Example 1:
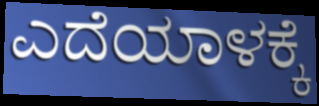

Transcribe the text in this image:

ಎದೆಯಾಳಕ್ಕೆ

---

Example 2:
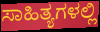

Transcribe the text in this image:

ಸಾಹಿತ್ಯಗಳಲ್ಲಿ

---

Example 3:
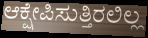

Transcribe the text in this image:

ಆಕ್ಷೇಪಿಸುತ್ತಿರಲಿಲ್ಲ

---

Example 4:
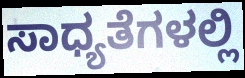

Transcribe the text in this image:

ಸಾಧ್ಯತೆಗಳಲ್ಲಿ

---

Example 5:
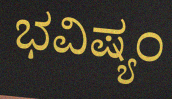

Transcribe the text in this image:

ಭವಿಷ್ಯಂ